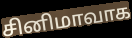
சினிமாவாக